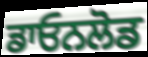
ਡਾਓਨਲੋਡ